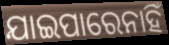
ଯାଇପାରେନାହିଁ